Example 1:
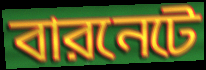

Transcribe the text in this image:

বারনেটে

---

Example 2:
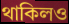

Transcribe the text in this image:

থাকিলও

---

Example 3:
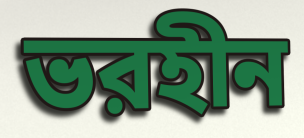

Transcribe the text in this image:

ভরহীন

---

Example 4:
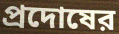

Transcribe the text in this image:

প্রদোষের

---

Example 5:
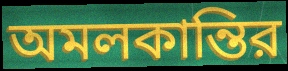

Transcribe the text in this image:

অমলকান্তির